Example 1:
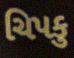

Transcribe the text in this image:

ચિપકુ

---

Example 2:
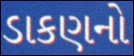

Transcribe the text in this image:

ડાકણનો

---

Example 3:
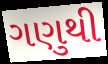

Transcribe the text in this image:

ગણુથી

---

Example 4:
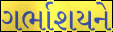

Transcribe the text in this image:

ગર્ભાશયને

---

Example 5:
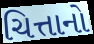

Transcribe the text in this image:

ચિત્તાનો